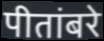
पीतांबरे